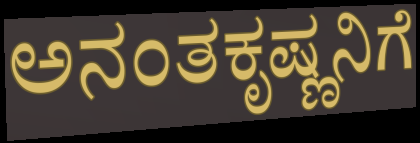
ಅನಂತಕೃಷ್ಣನಿಗೆ